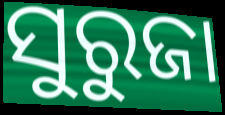
ସୁରୁଜା